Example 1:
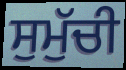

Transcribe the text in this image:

ਸੁਮੁੱਚੀ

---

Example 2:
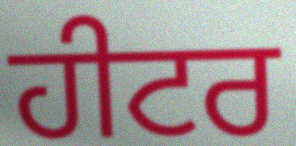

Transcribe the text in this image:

ਹੀਟਰ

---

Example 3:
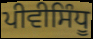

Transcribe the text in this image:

ਪੀਵੀਸਿੰਧੂ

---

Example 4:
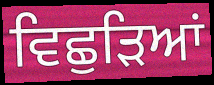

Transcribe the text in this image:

ਵਿਛੁੜਿਆਂ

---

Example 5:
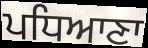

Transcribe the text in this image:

ਪਧਿਆਣਾ